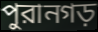
পুরানগড়